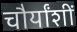
चौर्यांशीं